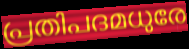
പ്രതിപദമധുരേ